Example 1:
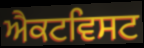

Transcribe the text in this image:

ਐਕਟਵਿਸਟ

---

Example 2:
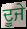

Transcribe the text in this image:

ਦੂਜੇ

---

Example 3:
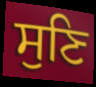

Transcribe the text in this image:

ਸੁਣਿ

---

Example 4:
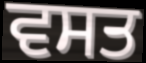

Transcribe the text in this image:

ਵਸਤ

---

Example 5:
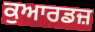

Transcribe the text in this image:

ਕੁਆਰਡਜ਼